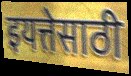
इयत्तेसाठी